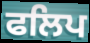
ਫਲਿਪ